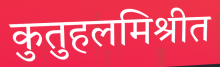
कुतुहलमिश्रीत